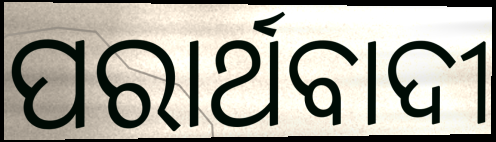
ପରାର୍ଥବାଦୀ